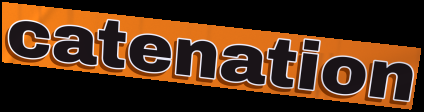
catenation